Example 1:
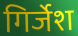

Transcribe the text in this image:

गिर्जेश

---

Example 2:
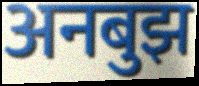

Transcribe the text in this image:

अनबुझ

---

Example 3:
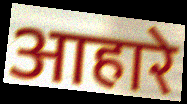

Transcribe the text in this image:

आहारे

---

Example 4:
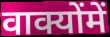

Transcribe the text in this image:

वाक्योंमें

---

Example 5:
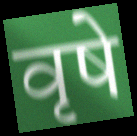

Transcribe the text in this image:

वृषे